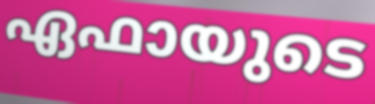
ഏഫായുടെ